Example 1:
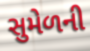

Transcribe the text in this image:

સુમેળની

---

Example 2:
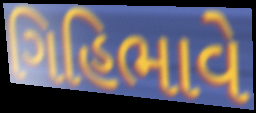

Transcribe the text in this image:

ગિહિભાવે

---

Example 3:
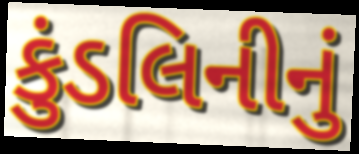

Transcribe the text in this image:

કુંડલિનીનું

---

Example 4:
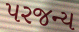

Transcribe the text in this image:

પરજન્ય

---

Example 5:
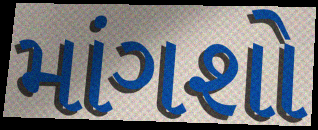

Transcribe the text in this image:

માંગશો